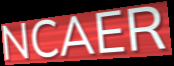
NCAER